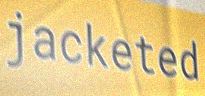
jacketed